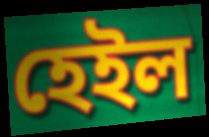
হেইল